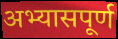
अभ्यासपूर्ण